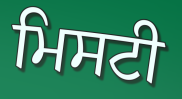
ਮਿਸਟੀ